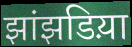
झांझडिय़ा